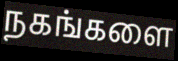
நகங்களை